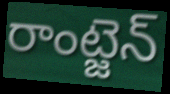
రాంట్జెన్